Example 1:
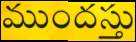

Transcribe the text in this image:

ముందస్తు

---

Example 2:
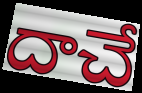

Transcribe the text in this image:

దాచే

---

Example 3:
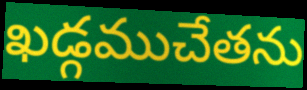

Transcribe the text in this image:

ఖడ్గముచేతను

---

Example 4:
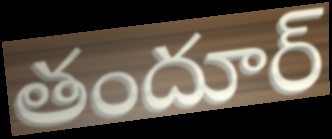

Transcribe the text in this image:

తందూర్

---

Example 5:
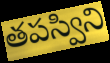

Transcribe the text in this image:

తపస్విని